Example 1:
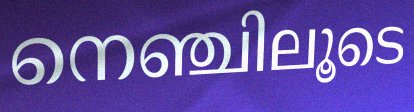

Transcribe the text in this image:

നെഞ്ചിലൂടെ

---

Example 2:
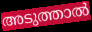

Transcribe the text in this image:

അടുത്താൽ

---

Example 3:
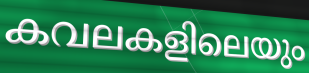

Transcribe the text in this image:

കവലകളിലെയും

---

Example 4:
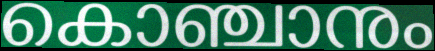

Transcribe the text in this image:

കൊഞ്ചാനും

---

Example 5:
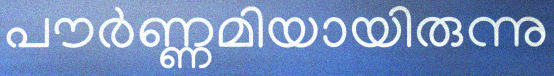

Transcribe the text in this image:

പൗർണ്ണമിയായിരുന്നു